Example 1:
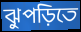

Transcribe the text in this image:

ঝুপড়িতে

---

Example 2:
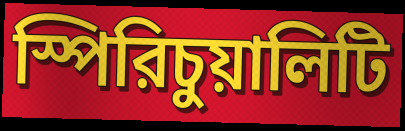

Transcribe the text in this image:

স্পিরিচুয়ালিটি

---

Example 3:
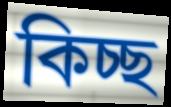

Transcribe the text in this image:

কিচ্ছ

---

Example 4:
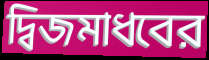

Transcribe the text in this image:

দ্বিজমাধবের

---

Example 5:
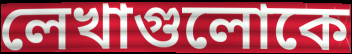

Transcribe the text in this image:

লেখাগুলোকে